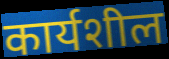
कार्यशील